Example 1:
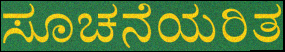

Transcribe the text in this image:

ಸೂಚನೆಯರಿತ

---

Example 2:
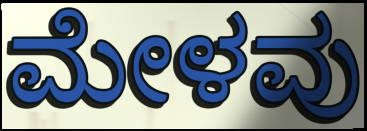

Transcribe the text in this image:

ಮೇಳವು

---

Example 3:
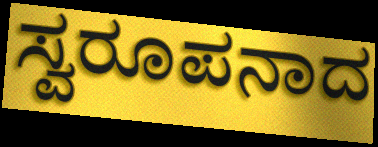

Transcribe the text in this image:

ಸ್ವರೂಪನಾದ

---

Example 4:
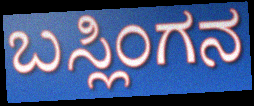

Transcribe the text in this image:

ಬಸ್ಲಿಂಗನ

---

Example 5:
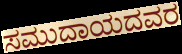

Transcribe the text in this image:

ಸಮುದಾಯದವರ